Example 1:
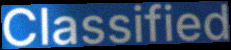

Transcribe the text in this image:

Classified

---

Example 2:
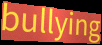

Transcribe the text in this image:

bullying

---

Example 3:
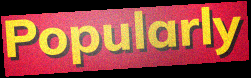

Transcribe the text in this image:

Popularly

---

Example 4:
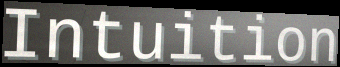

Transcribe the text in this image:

Intuition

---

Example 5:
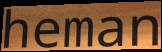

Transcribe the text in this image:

heman